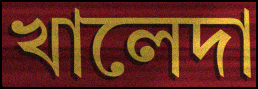
খালেদা